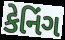
કેનિંગ